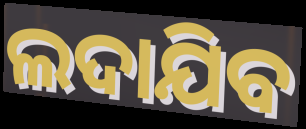
ଲଦାଯିବ